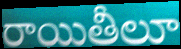
రాయితీలూ